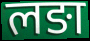
लङा